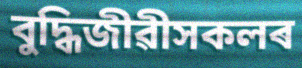
বুদ্ধিজীৱীসকলৰ